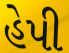
હેપી